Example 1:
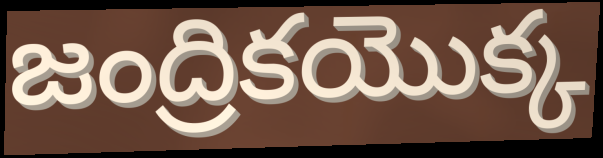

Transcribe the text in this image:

జంద్రికయొక్క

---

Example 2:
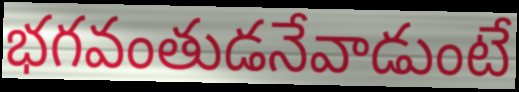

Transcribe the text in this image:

భగవంతుడనేవాడుంటే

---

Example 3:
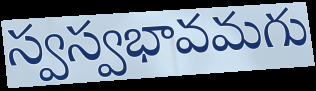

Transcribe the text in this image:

స్వస్వభావమగు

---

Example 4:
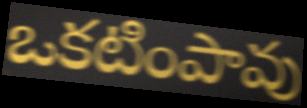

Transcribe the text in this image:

ఒకటింపావు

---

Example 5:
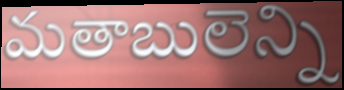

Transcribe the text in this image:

మతాబులెన్ని